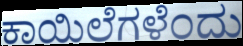
ಕಾಯಿಲೆಗಳೆಂದು